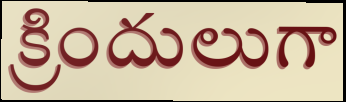
క్రిందులుగా